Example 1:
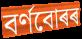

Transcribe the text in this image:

বৰ্ণবোৰৰ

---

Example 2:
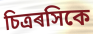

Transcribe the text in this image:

চিত্ৰৰসিকে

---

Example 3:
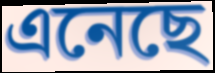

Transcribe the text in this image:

এনেছে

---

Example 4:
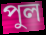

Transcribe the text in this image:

পুল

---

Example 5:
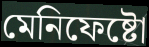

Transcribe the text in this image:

মেনিফেষ্টো